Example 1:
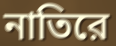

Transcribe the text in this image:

নাতিরে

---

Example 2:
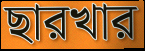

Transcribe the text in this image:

ছারখার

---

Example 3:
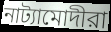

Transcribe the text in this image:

নাট্যামোদীরা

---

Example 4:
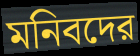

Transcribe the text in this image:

মনিবদের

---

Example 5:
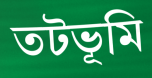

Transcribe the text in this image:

তটভূমি